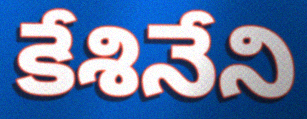
కేశినేని